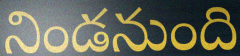
నిండనుంది